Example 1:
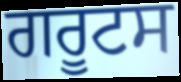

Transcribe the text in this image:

ਗਰੂਟਸ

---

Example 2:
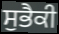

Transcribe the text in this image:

ਸੁਭੈਕੀ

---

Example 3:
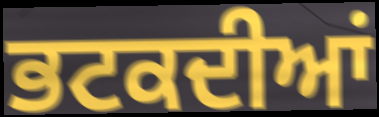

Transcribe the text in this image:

ਭਟਕਦੀਆਂ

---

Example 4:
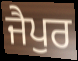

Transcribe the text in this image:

ਜੈਪੁਰ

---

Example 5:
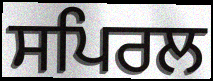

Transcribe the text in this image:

ਸਪਿਰਲ